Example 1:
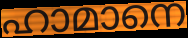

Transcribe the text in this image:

ഹാമാനെ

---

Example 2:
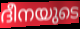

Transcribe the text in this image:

ദീനയുടെ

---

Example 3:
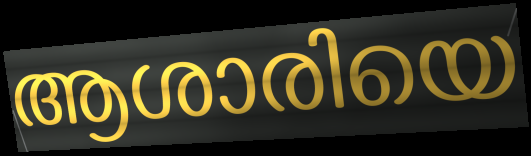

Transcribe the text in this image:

ആശാരിയെ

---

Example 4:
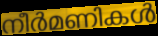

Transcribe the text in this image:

നീർമണികൾ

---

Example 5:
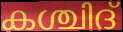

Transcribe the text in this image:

കശ്ചിദ്